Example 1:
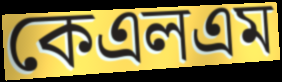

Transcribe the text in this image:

কেএলএম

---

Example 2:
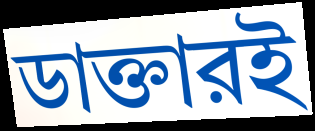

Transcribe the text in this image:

ডাক্তারই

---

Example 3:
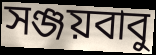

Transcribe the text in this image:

সঞ্জয়বাবু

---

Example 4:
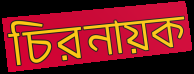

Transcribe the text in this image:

চিরনায়ক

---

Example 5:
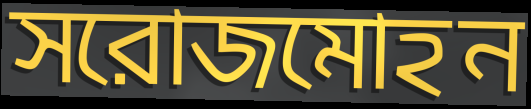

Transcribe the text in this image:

সরোজমোহন